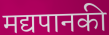
मद्यपानकी